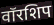
वॉरशिप